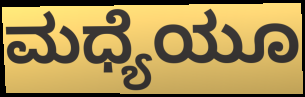
ಮಧ್ಯೆಯೂ